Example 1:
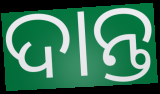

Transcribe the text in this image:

ଦାନ୍ତ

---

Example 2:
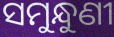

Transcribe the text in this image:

ସମୁନ୍ଧୁଣୀ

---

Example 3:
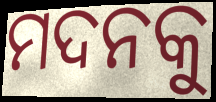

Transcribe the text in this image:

ମଦନକୁ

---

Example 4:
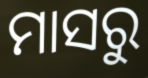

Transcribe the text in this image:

ମାସରୁ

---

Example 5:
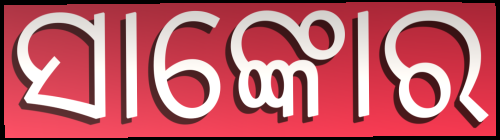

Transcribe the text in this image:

ସାଙ୍କୋର